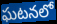
ఘటనలో